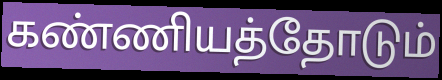
கண்ணியத்தோடும்